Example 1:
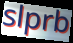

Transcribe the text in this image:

slprb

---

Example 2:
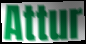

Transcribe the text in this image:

Attur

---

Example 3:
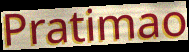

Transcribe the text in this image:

Pratimao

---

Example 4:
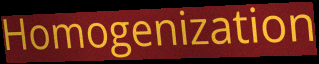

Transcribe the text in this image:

Homogenization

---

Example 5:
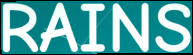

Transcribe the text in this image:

RAINS